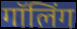
गॉलिंग